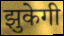
झुकेगी